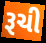
રૂચી